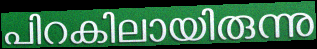
പിറകിലായിരുന്നു